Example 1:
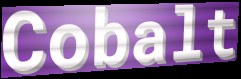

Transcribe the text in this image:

Cobalt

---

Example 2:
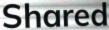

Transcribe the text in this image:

Shared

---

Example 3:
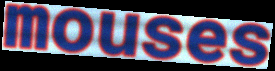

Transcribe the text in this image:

mouses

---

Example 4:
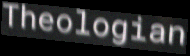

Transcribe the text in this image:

Theologian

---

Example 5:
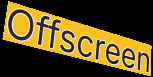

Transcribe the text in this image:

Offscreen